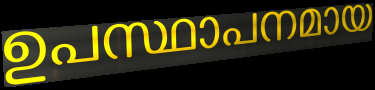
ഉപസ്ഥാപനമായ